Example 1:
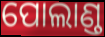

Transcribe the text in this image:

ପୋଲାଣ୍ଡ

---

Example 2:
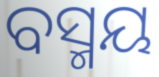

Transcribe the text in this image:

ବସ୍ମୟ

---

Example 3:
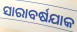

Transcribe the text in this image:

ସାରାବର୍ଷଯାକ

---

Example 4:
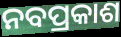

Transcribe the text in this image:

ନବପ୍ରକାଶ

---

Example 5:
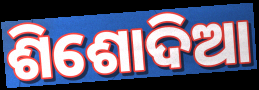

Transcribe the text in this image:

ଶିଶୋଦିଆ